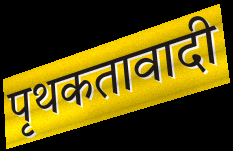
पृथकतावादी